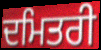
ਦਮਿਤਰੀ